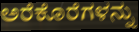
ಅರೆಕೊರೆಗಳನ್ನು